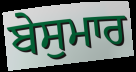
ਬੇਸੁਮਾਰ